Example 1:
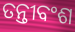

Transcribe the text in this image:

ତନ୍ତୀବଂଶ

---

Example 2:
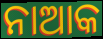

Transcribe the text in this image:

ନାଆକ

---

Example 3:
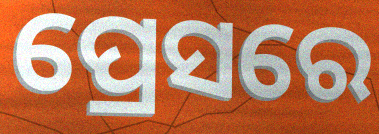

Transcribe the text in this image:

ପ୍ରେସରେ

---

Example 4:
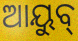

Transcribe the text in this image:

ଆୟୁବ୍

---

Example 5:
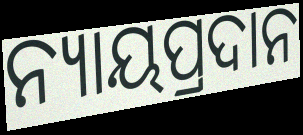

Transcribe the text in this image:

ନ୍ୟାୟପ୍ରଦାନ